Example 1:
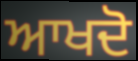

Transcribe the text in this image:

ਆਖਦੋ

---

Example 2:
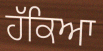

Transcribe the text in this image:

ਹੱਕਿਆ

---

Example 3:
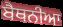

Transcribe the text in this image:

ਬੈਥਨੀਆ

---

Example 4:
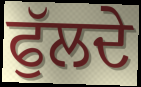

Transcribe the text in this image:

ਫੁੱਲਦੇ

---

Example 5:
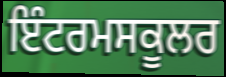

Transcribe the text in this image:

ਇੰਟਰਮਸਕੂਲਰ